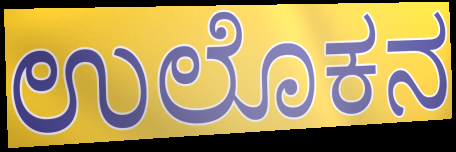
ಉಲೊಕನ